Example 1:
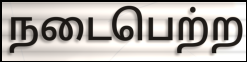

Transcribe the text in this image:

நடைபெற்ற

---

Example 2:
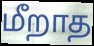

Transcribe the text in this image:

மீறாத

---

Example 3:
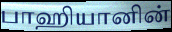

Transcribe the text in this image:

பாஹியானின்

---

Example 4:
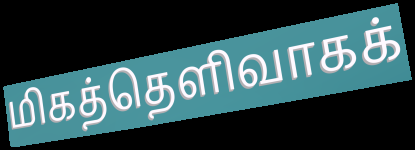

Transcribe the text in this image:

மிகத்தெளிவாகக்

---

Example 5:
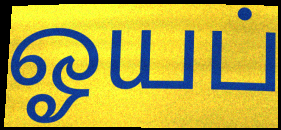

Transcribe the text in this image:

ஓயப்